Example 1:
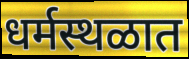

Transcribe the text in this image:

धर्मस्थळात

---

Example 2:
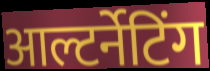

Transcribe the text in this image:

आल्टर्नेटिंग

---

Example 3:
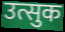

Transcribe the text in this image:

उत्सुक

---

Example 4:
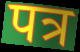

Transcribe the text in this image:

पत्र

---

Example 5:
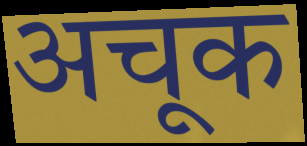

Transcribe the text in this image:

अचूक